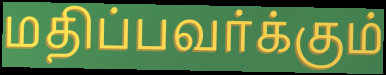
மதிப்பவர்க்கும்